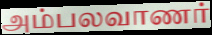
அம்பலவாணர்